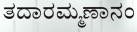
ತದಾರಮ್ಮಣಾನಂ